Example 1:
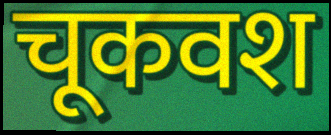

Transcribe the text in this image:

चूकवश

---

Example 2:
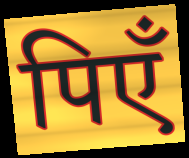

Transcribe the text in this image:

पिएँ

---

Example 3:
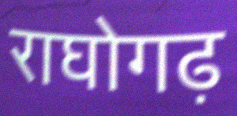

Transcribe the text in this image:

राघोगढ़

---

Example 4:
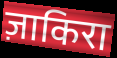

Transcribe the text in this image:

ज़ाकिरा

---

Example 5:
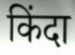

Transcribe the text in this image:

किंदा